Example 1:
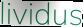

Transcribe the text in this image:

lividus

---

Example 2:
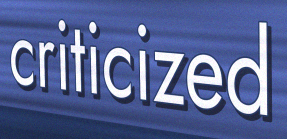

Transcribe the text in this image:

criticized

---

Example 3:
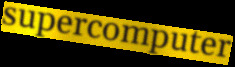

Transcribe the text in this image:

supercomputer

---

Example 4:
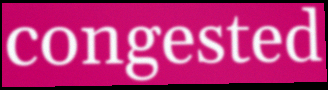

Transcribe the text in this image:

congested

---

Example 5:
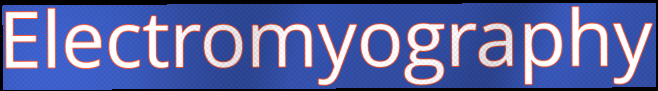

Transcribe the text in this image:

Electromyography